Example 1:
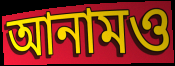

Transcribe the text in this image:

আনামও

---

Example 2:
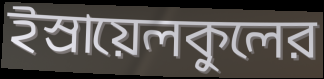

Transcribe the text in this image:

ইস্রায়েলকুলের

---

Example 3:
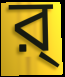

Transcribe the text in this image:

র্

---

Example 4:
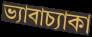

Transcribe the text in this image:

ভ্যাবাচ্যাকা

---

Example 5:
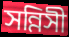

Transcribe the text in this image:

সন্নিসী